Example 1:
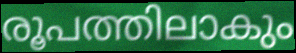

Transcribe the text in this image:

രൂപത്തിലാകും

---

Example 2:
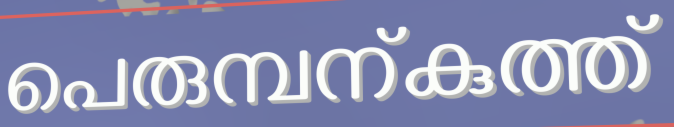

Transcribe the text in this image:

പെരുമ്പന്കുത്ത്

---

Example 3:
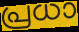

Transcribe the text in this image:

പ്രധാ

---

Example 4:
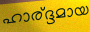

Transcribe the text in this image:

ഹാര്ദ്ദമായ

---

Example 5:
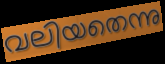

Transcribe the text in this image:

വലിയതെന്നു